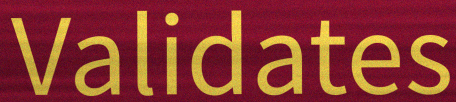
Validates